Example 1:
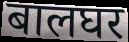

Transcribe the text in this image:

बालघर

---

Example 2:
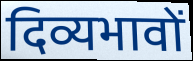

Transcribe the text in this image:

दिव्यभावों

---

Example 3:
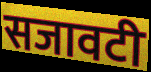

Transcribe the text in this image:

सजावटी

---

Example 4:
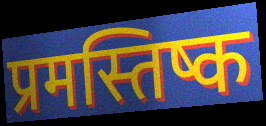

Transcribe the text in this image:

प्रमस्तिष्क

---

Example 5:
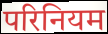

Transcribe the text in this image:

परिनियम